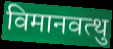
विमानवत्थु